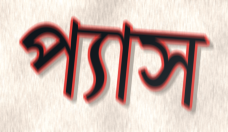
প্যাস